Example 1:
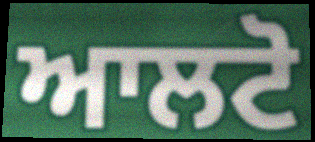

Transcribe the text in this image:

ਆਲਟੋ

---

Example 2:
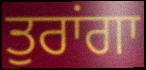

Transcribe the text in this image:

ਤੁਰਾਂਗਾ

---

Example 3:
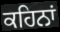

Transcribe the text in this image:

ਕਹਿਨਾਂ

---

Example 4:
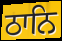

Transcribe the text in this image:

ਠਾਨਿ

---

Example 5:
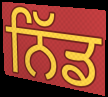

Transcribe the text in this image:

ਨਿੱਡ